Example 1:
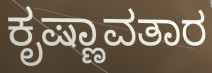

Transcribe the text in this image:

ಕೃಷ್ಣಾವತಾರ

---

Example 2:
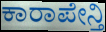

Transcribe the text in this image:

ಕಾರಾಪೇನ್ತಿ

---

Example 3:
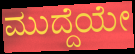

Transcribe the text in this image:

ಮುದ್ದೆಯೇ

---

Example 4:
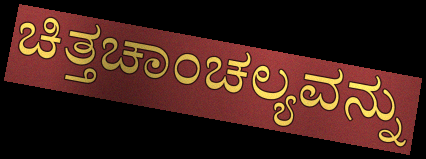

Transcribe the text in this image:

ಚಿತ್ತಚಾಂಚಲ್ಯವನ್ನು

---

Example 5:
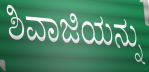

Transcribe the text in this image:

ಶಿವಾಜಿಯನ್ನು